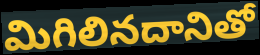
మిగిలినదానితో